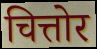
चित्तोर